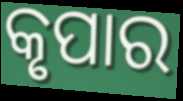
କୃପାର